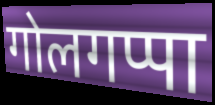
गोलगप्पा